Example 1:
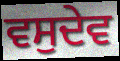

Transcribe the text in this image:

ਵਸੁਦੇਵ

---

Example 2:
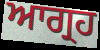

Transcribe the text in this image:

ਆਗ੍ਰਹ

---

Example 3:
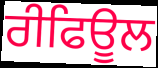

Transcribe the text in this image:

ਰੀਫਿਊਲ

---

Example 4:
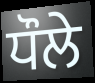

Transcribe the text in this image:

ਧੌਲੇ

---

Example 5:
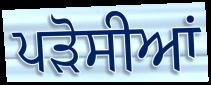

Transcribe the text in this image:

ਪੜੋਸੀਆਂ